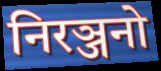
निरञ्जनो